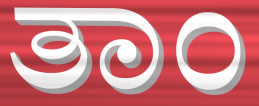
ತಾಂ